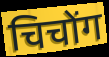
चिचोंग